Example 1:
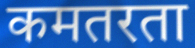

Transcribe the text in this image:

कमतरता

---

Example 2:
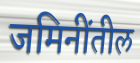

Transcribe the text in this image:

जमिनींतील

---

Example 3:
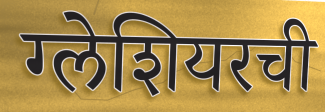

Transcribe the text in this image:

ग्लेशियरची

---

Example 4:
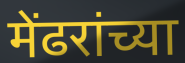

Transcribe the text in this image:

मेंढरांच्या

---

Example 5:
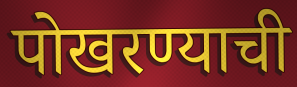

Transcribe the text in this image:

पोखरण्याची